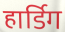
हार्डिग